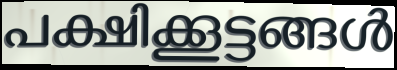
പക്ഷിക്കൂട്ടങ്ങൾ